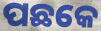
ପଛକେ